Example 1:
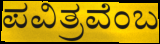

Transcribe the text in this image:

ಪವಿತ್ರವೆಂಬ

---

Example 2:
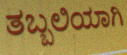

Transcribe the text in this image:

ತಬ್ಬಲಿಯಾಗಿ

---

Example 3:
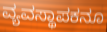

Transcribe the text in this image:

ವ್ಯವಸ್ಥಾಪಕನೂ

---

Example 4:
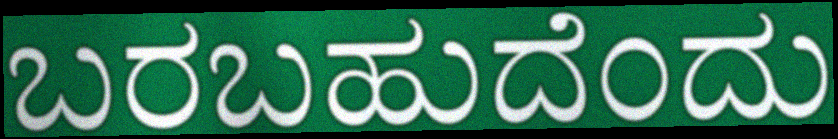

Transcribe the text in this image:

ಬರಬಹುದೆಂದು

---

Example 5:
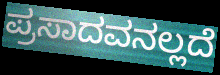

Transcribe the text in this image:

ಪ್ರಸಾದವನಲ್ಲದೆ